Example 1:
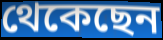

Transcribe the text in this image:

থেকেছেন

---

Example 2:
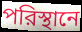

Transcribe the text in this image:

পরিস্থানে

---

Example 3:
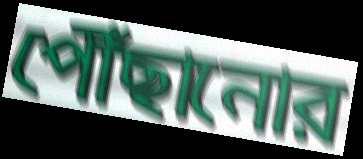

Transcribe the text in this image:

পৌঁছানোর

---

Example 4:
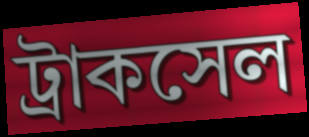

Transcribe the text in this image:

ট্রাকসেল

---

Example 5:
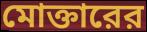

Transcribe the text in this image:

মোক্তারের